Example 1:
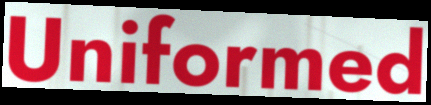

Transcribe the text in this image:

Uniformed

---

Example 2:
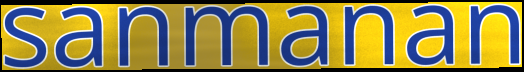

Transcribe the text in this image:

sanmanan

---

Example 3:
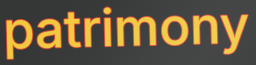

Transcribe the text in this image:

patrimony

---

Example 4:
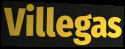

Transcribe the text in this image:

Villegas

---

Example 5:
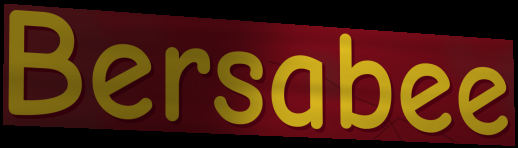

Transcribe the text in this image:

Bersabee